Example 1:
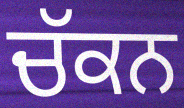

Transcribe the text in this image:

ਚੱਕਨ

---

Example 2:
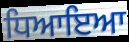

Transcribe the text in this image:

ਧਿਆਇਆ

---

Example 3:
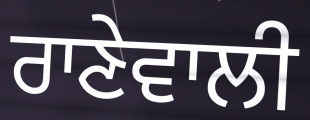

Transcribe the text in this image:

ਰਾਣੇਵਾਲੀ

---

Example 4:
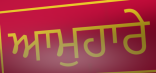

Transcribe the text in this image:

ਆਮੁਹਾਰੇ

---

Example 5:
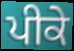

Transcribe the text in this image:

ਪੀਕੇ